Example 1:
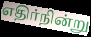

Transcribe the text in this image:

எதிர்நின்று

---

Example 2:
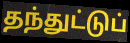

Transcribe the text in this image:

தந்துட்டுப்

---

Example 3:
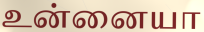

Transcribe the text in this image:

உன்னையா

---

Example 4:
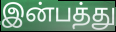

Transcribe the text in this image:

இன்பத்து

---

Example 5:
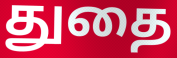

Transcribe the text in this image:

துதை